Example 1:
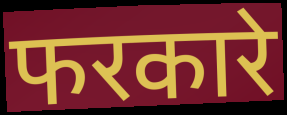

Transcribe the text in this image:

फरकारे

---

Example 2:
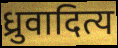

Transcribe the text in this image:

ध्रुवादित्य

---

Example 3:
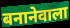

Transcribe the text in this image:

बनानेवाला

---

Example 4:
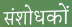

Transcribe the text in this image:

संशोधकों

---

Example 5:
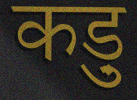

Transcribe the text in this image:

कड़ु